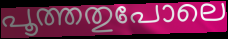
പൂത്തതുപോലെ